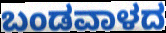
ಬಂಡವಾಳದ